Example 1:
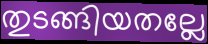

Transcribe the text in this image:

തുടങ്ങിയതല്ലേ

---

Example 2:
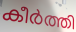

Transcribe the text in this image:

കീർത്തി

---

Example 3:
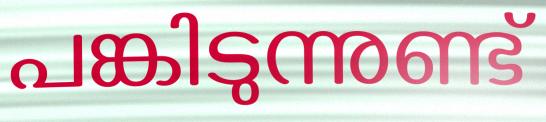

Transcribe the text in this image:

പങ്കിടുന്നുണ്ട്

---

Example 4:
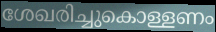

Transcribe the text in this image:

ശേഖരിച്ചുകൊള്ളണം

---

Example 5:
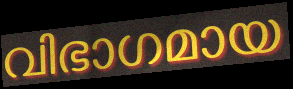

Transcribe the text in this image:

വിഭാഗമായ